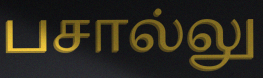
பசால்லு